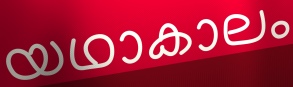
യഥാകാലം